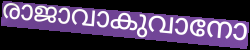
രാജാവാകുവാനോ